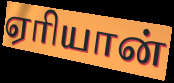
ஏரியான்